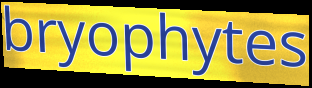
bryophytes